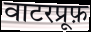
वाटरप्रूफ़